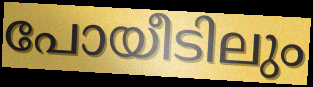
പോയീടിലും